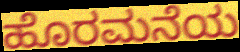
ಹೊರಮನೆಯ